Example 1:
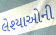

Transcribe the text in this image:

લેશ્યાઓની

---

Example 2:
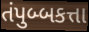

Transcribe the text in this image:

તંપુબ્બકત્તા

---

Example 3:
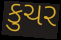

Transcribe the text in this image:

કુચર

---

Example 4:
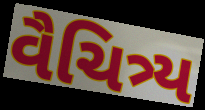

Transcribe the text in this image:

વૈચિત્ર્ય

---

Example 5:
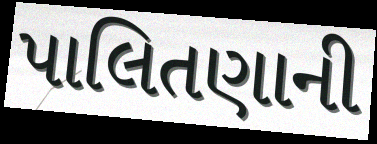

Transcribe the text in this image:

પાલિતણાની